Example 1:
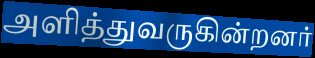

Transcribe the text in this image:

அளித்துவருகின்றனர்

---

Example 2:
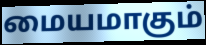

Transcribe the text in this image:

மையமாகும்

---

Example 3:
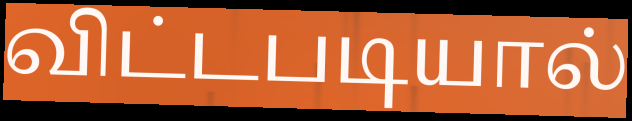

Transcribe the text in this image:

விட்டபடியால்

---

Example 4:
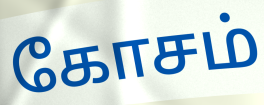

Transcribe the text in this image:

கோசம்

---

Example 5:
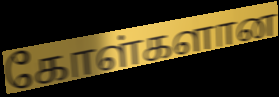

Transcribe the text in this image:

கோள்களான